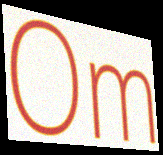
Om